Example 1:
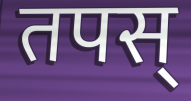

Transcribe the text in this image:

तपस्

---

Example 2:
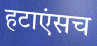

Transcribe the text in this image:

हटाएंसच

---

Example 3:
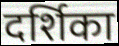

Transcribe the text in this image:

दर्शिका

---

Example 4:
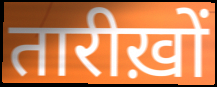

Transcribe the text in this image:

तारीख़ों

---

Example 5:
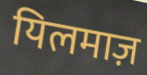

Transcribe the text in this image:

यिलमाज़